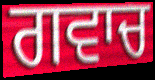
ਗਵਾਚ